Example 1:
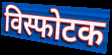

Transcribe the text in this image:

विस्फोटक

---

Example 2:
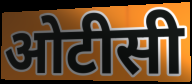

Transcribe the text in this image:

ओटीसी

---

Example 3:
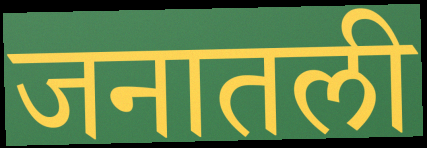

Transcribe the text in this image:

जनातली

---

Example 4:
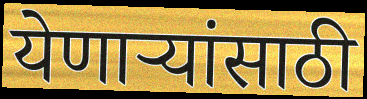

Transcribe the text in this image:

येणाऱ्यांसाठी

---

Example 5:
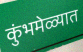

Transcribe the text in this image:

कुंभमेळ्यात